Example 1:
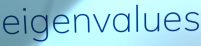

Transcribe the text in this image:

eigenvalues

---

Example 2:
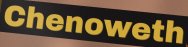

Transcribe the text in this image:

Chenoweth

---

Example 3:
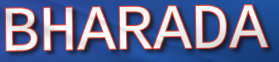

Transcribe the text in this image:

BHARADA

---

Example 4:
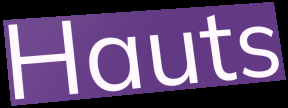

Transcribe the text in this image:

Hauts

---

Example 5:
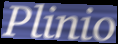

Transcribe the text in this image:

Plinio